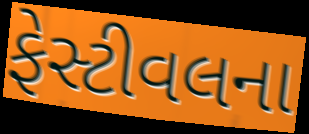
ફેસ્ટીવલના